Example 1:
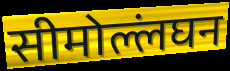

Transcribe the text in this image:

सीमोल्लंघन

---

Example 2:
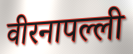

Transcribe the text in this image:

वीरनापल्ली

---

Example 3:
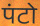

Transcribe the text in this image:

पंटो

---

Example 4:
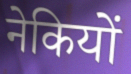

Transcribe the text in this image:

नेकियों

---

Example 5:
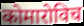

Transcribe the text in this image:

कोमारोविच